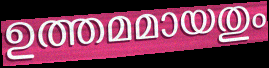
ഉത്തമമായതും